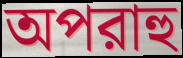
অপরাহু